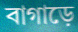
বাগাড়ে